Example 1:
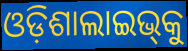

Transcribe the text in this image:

ଓଡ଼ିଶାଲାଇଭ୍‌କୁ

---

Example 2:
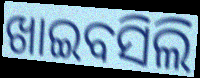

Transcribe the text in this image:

ଖାଇବସିଲି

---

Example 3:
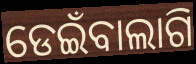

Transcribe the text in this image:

ଡେଇଁବାଲାଗି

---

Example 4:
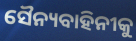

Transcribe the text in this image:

ସୈନ୍ୟବାହିନୀକୁ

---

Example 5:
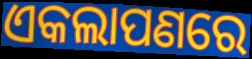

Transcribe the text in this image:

ଏକଲାପଣରେ